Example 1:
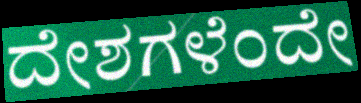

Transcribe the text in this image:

ದೇಶಗಳೆಂದೇ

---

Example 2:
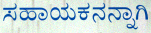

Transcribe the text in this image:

ಸಹಾಯಕನನ್ನಾಗಿ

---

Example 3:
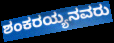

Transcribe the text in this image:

ಶಂಕರಯ್ಯನವರು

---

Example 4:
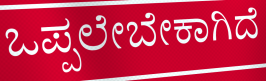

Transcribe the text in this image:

ಒಪ್ಪಲೇಬೇಕಾಗಿದೆ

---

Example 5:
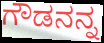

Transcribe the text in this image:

ಗೌಡನನ್ನ